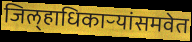
जिल्हाधिकाऱ्यांसमवेत